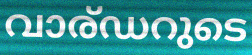
വാര്ഡറുടെ